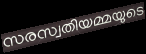
സരസ്വതിയമ്മയുടെ